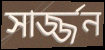
সার্জ্জন